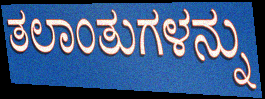
ತಲಾಂತುಗಳನ್ನು